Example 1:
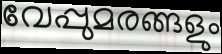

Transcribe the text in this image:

വേപ്പുമരങ്ങളും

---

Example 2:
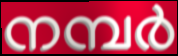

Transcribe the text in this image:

നമ്പർ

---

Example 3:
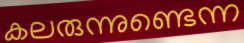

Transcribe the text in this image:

കലരുന്നുണ്ടെന്ന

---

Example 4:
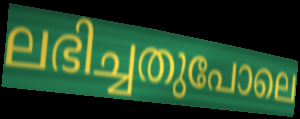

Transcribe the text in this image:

ലഭിച്ചതുപോലെ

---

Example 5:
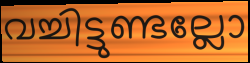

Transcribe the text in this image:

വച്ചിട്ടുണ്ടല്ലോ